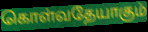
கொள்வதேயாகும்